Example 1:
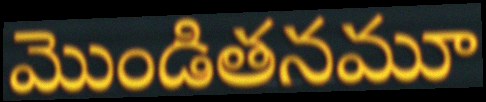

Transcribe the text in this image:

మొండితనమూ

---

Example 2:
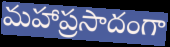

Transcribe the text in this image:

మహాప్రసాదంగా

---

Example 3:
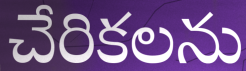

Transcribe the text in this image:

చేరికలను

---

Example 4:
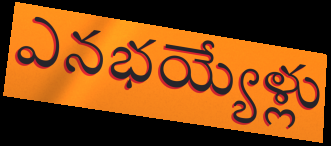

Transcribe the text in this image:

ఎనభయ్యేళ్లు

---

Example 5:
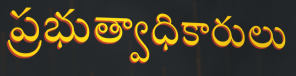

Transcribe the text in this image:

ప్రభుత్వాధికారులు